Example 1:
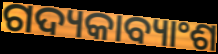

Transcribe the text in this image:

ଗଦ୍ୟକାବ୍ୟାଂଶ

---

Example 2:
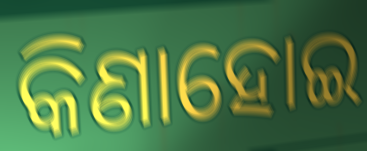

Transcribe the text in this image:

କିଣାହୋଇ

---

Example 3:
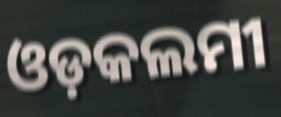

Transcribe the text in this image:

ଓଡ଼କଲମୀ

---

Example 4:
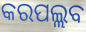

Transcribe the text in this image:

କରପଲ୍ଲବ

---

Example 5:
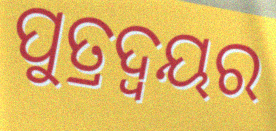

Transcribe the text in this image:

ପୁତ୍ରଦ୍ୱୟର